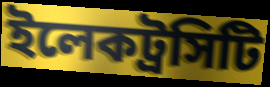
ইলেকট্রসিটি